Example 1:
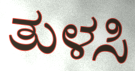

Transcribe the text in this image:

ತುಳಸಿ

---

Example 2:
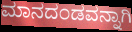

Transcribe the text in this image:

ಮಾನದಂಡವನ್ನಾಗಿ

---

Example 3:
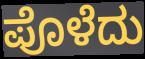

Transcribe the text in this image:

ಪೊಳೆದು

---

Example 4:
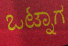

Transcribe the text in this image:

ಒಟ್ನಾಗ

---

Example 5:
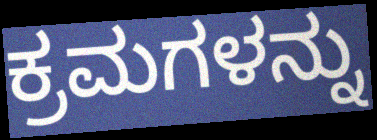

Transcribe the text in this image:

ಕ್ರಮಗಳನ್ನು